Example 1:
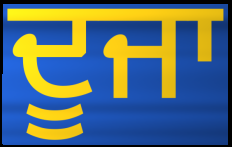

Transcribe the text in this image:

ਦੂਜਾ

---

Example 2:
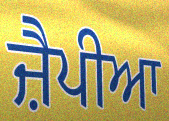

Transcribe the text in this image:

ਜ਼ੈਪੀਆ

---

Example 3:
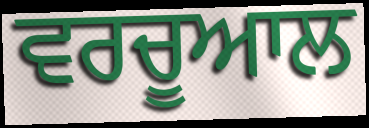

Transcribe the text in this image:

ਵਰਚੂਆਲ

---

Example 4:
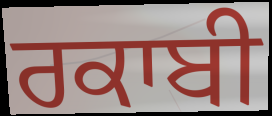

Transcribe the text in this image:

ਰਕਾਬੀ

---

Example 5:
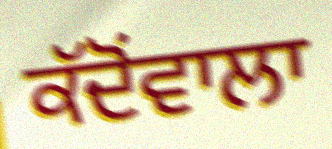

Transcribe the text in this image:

ਕੱਦੋਂਵਾਲਾ